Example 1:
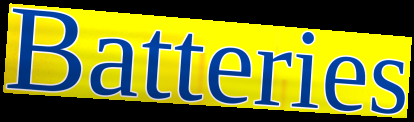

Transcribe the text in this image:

Batteries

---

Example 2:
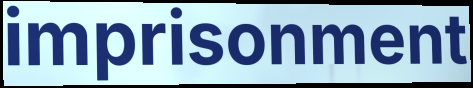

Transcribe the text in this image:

imprisonment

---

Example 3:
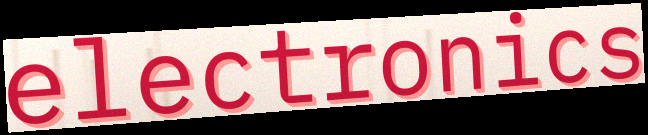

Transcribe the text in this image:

electronics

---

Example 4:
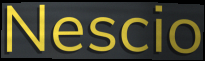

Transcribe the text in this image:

Nescio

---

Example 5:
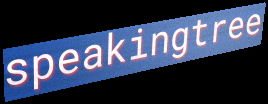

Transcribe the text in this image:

speakingtree